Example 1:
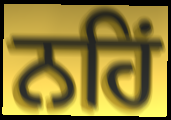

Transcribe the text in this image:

ਨਹਿਂ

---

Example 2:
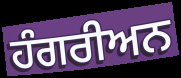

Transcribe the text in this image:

ਹੰਗਰੀਅਨ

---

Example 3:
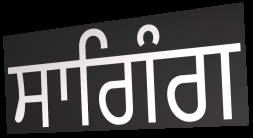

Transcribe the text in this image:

ਸਾਗਿੰਗ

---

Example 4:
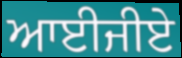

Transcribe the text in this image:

ਆਈਜੀਏ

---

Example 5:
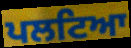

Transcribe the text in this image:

ਪਲਟਿਆ